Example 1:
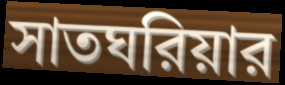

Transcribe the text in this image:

সাতঘরিয়ার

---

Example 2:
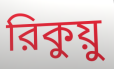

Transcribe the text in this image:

রিকুয়ু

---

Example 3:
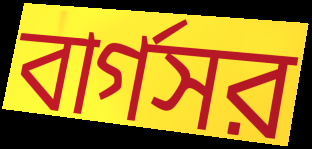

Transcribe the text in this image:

বার্গসর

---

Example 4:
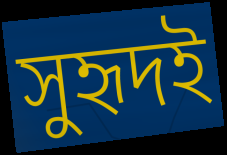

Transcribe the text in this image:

সুহৃদই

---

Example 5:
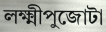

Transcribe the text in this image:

লক্ষ্মীপুজোটা